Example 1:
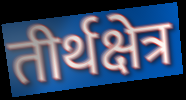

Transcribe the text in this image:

तीर्थक्षेत्र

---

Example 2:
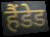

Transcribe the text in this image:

हैंडेड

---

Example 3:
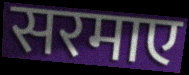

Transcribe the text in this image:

सरमाए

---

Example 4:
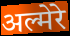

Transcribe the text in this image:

अल्मेरे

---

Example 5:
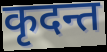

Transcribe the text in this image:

कृदन्त